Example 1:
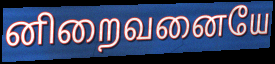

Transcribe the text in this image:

னிறைவனையே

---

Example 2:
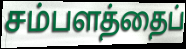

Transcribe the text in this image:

சம்பளத்தைப்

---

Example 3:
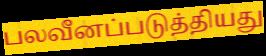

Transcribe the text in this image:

பலவீனப்படுத்தியது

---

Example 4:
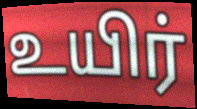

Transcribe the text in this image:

உயிர்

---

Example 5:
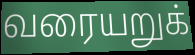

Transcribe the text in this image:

வரையறுக்